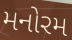
મનોરમ